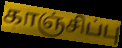
காஞ்சிப்பு